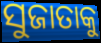
ସୁଜାତାକୁ